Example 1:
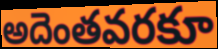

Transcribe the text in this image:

అదెంతవరకూ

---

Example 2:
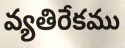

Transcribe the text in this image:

వ్యతిరేకము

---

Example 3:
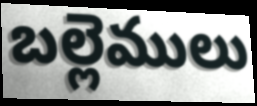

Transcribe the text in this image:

బల్లెములు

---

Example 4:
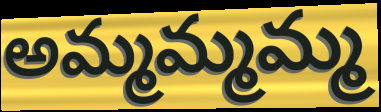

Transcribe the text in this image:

అమ్మమ్మమ్మ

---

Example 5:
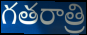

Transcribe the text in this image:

గతరాత్రి